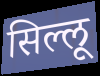
सिल्लू